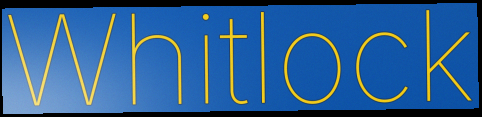
Whitlock